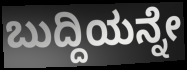
ಬುದ್ದಿಯನ್ನೇ